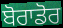
ਬੋਰਾਡੋਰ